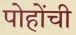
पोहोंची